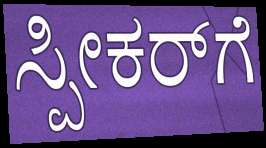
ಸ್ಪೀಕರ್‌ಗೆ